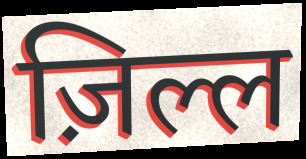
ज़िल्ल